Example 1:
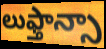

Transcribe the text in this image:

లుఫ్తాన్సా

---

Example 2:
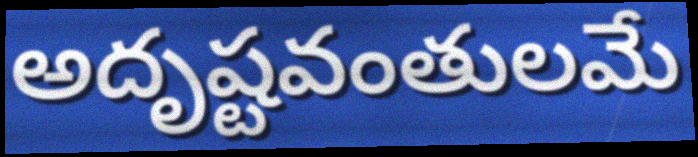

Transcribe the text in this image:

అదృష్టవంతులమే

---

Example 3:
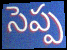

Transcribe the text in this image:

సెప్ప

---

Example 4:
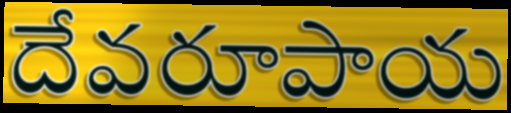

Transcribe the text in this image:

దేవరూపాయ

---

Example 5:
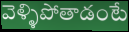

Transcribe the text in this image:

వెళ్ళిపోతాడంటే